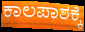
ಕಾಲಪಾಶಕ್ಕೆ